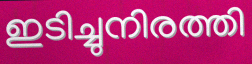
ഇടിച്ചുനിരത്തി